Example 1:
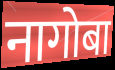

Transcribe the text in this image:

नागोबा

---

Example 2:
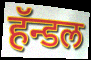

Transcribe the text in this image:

हॅन्डल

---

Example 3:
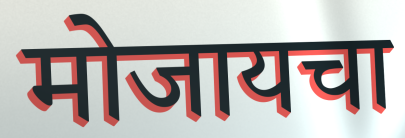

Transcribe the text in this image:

मोजायचा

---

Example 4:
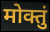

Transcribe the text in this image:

मोक्तुं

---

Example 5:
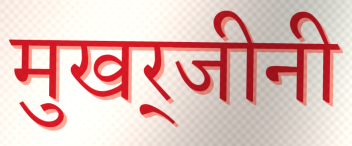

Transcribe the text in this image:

मुखर्जीनी